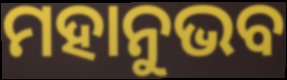
ମହାନୁଭବ